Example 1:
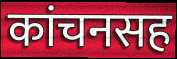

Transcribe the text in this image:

कांचनसह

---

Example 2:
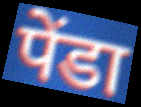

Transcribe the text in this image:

पेंडा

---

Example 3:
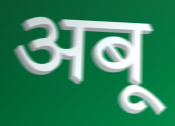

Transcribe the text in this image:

अबू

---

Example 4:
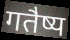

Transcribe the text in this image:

गतैष्य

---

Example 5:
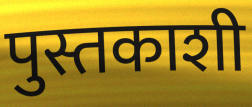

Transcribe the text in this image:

पुस्तकाशी